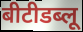
बीटीडब्लू